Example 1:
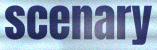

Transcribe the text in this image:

scenary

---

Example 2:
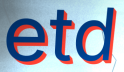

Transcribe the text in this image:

etd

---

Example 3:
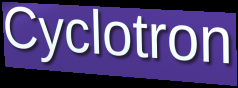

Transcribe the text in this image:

Cyclotron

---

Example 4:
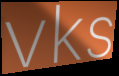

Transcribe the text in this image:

vks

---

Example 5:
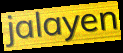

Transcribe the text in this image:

jalayen